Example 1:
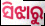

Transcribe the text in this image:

ସିଝାରୁ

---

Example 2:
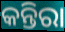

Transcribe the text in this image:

କନ୍ତିରା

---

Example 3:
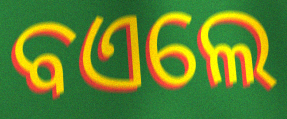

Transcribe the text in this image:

ବଏଲେ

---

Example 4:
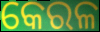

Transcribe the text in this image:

କେରଳ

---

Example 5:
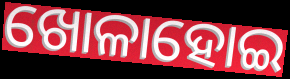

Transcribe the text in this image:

ଖୋଳାହୋଇ